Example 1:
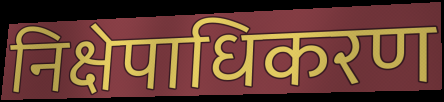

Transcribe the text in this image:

निक्षेपाधिकरण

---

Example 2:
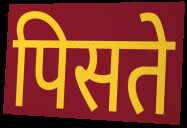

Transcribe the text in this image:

पिसते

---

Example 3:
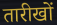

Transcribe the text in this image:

तारीखों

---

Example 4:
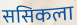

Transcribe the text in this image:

ससिकला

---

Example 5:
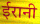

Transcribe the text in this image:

ईरानी